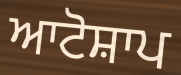
ਆਟੋਸ਼ਾਪ